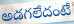
అడగలేదంటే